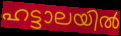
ഹട്ടാലയിൽ